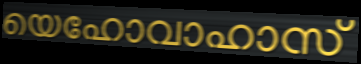
യെഹോവാഹാസ്